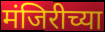
मंजिरीच्या